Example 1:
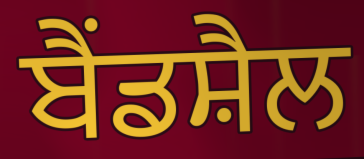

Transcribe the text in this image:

ਬੈਂਡਸ਼ੈਲ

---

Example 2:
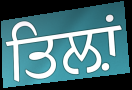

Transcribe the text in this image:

ਤਿਲ਼ਾਂ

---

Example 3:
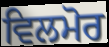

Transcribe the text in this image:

ਵਿਲਮੋਰ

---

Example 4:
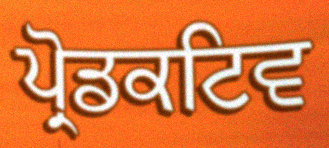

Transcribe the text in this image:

ਪ੍ਰੋਡਕਟਿਵ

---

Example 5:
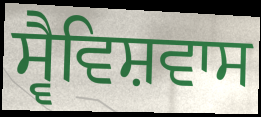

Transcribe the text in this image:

ਸ੍ਵੈਵਿਸ਼ਵਾਸ